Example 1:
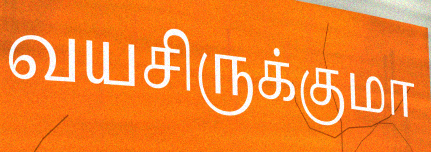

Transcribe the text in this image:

வயசிருக்குமா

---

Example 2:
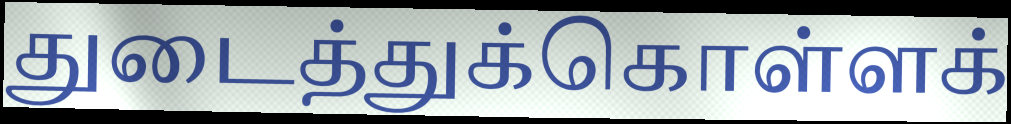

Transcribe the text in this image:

துடைத்துக்கொள்ளக்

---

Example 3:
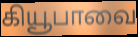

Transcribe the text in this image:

கியூபாவை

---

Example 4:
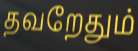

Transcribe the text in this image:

தவறேதும்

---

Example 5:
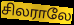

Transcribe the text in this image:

சிலராலே